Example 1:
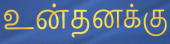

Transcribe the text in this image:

உன்தனக்கு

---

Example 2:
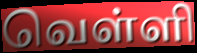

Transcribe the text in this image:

வெள்ளி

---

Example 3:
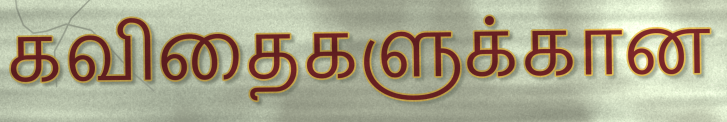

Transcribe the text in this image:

கவிதைகளுக்கான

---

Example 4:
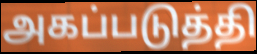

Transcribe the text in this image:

அகப்படுத்தி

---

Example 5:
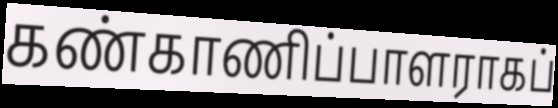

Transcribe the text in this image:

கண்காணிப்பாளராகப்